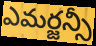
ఎమర్జన్సీ